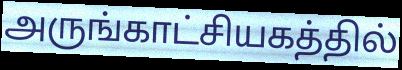
அருங்காட்சியகத்தில்